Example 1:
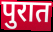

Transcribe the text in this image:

पुरात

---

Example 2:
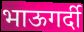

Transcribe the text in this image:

भाऊगर्दी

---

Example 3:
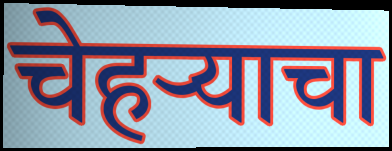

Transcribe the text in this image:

चेहर्‍याचा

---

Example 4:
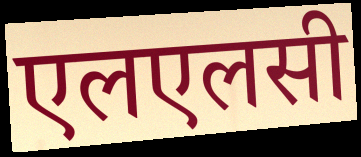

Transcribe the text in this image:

एलएलसी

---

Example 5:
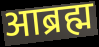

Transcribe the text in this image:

आब्रह्म